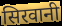
सिरवानी